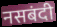
नसबंदी